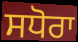
ਸਧੋਰਾ